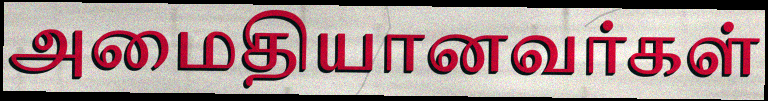
அமைதியானவர்கள்